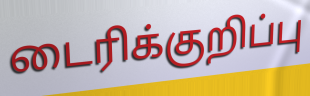
டைரிக்குறிப்பு